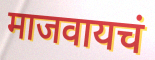
माजवायचं